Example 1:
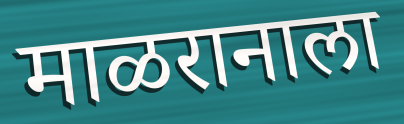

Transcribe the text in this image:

माळरानाला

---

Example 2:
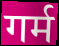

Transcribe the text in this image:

गर्म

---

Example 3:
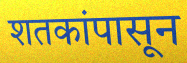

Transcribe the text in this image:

शतकांपासून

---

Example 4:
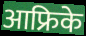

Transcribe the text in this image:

आफ्रिके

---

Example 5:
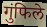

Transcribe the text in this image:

गुंफिले